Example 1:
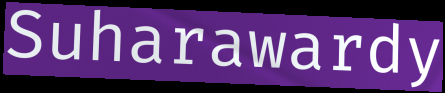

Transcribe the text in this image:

Suharawardy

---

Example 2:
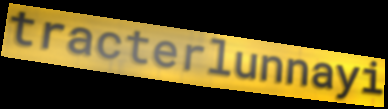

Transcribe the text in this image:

tracterlunnayi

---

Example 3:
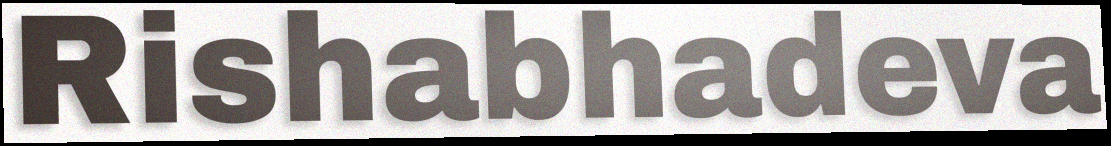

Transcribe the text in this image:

Rishabhadeva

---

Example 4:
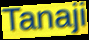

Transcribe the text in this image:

Tanaji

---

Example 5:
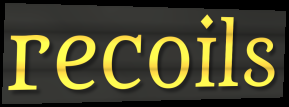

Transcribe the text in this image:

recoils